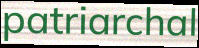
patriarchal